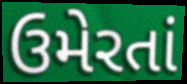
ઉમેરતાં